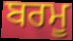
ਬਰਮੂ